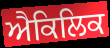
ਐਕਿਲਿਕ